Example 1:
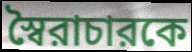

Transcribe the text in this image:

স্বৈরাচারকে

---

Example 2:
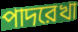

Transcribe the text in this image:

পাদরেখা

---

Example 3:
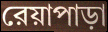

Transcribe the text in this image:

রেয়াপাড়া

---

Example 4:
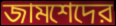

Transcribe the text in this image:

জামশেদের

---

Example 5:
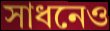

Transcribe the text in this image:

সাধনেও